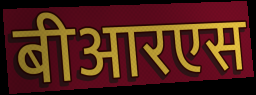
बीआरएस